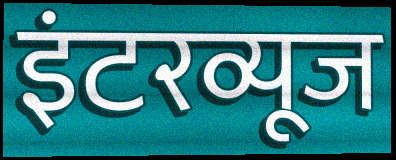
इंटरव्यूज